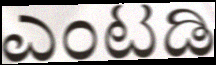
ಎಂಟಡಿ